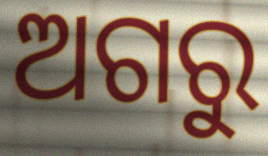
ଅଗରୁ